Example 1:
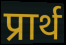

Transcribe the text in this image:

प्रार्थ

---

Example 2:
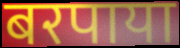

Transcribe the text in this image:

बरपाया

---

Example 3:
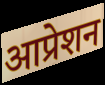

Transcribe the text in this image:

आप्रेशन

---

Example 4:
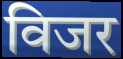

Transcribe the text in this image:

विजर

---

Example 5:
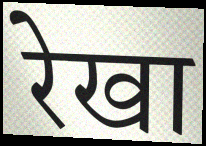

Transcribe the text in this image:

रेखा